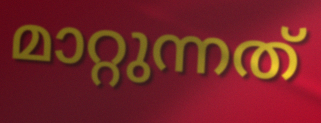
മാറ്റുന്നത്